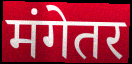
मंगेतर